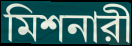
মিশনারী